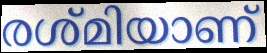
രശ്മിയാണ്